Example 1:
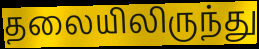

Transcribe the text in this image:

தலையிலிருந்து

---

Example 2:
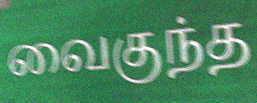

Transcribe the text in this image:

வைகுந்த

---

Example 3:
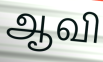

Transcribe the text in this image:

ஆவி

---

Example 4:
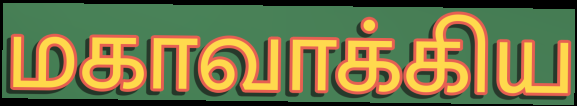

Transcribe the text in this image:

மகாவாக்கிய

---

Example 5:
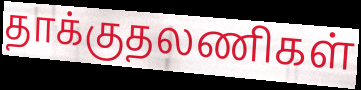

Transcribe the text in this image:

தாக்குதலணிகள்